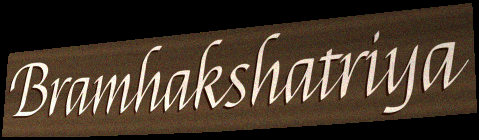
Bramhakshatriya